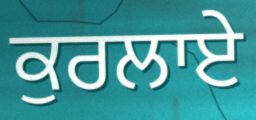
ਕੁਰਲਾਏ